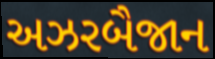
અઝરબૈજાન